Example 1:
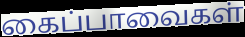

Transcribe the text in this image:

கைப்பாவைகள்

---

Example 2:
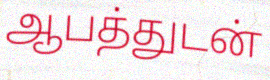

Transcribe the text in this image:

ஆபத்துடன்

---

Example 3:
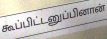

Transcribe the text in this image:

கூப்பிட்டனுப்பினான்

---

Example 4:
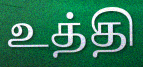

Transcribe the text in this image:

உத்தி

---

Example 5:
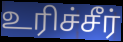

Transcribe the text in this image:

உரிச்சீர்